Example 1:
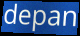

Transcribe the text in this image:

depan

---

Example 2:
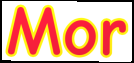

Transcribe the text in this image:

Mor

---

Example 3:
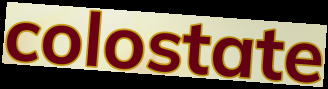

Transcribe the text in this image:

colostate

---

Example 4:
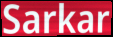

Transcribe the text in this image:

Sarkar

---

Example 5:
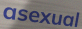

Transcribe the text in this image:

asexual